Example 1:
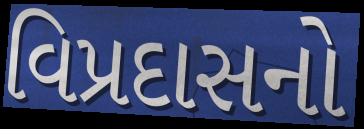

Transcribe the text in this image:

વિપ્રદાસનો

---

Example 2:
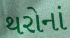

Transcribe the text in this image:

થરોનાં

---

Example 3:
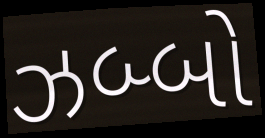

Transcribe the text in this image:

ઝબ્બો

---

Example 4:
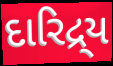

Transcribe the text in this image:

દારિદ્ર્ય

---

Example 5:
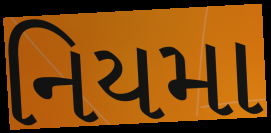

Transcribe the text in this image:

નિયમા